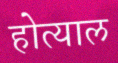
होत्याल